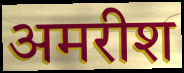
अमरीश